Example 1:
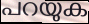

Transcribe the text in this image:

പറയുക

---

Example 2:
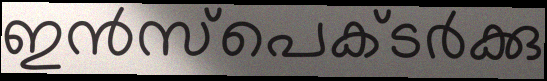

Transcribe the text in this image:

ഇൻസ്പെക്ടർക്കു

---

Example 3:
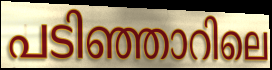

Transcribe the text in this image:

പടിഞ്ഞാറിലെ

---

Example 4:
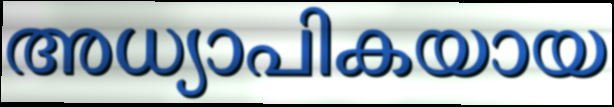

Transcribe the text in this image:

അധ്യാപികയായ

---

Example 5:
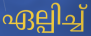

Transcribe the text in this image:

ഏല്പിച്ച്